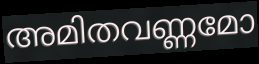
അമിതവണ്ണമോ